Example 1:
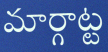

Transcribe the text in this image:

మార్గాట్ట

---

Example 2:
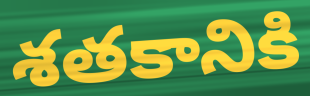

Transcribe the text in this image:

శతకానికి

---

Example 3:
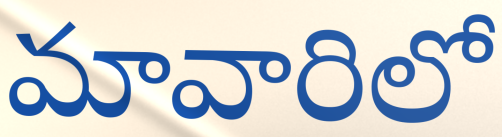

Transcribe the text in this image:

మావారిలో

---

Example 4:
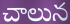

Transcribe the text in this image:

చాలున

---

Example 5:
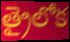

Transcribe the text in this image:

త్రైలోక